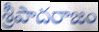
శ్రీపాదరాజం